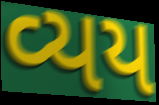
વ્યય